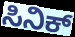
ಸಿನಿಕ್